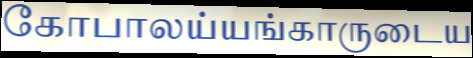
கோபாலய்யங்காருடைய